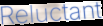
Reluctant